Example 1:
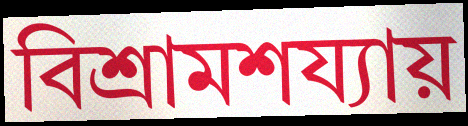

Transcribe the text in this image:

বিশ্রামশয্যায়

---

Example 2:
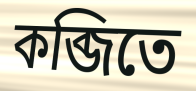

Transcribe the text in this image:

কব্জিতে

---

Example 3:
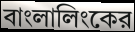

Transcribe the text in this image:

বাংলালিংকের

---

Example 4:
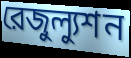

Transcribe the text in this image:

রেজুল্যুশন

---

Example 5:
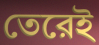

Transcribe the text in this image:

তেরেই